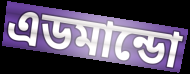
এডমান্ডো